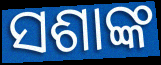
ସଶାଙ୍କ